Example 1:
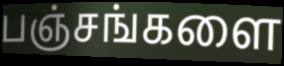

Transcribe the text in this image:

பஞ்சங்களை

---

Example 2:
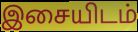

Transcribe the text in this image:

இசையிடம்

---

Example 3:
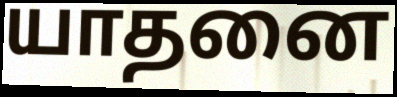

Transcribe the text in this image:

யாதனை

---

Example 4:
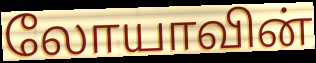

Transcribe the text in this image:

லோயாவின்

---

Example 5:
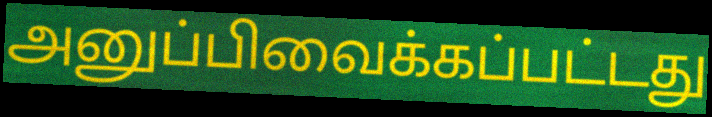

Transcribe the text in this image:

அனுப்பிவைக்கப்பட்டது